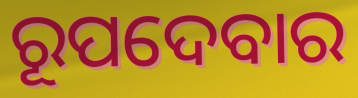
ରୂପଦେବାର